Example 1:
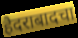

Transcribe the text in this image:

हैदराबादचा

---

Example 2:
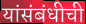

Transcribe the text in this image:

यांसंबंधीची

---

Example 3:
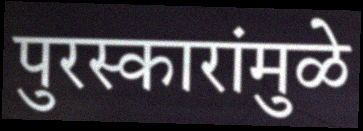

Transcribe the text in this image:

पुरस्कारांमुळे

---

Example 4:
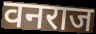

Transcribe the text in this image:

वनराज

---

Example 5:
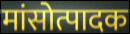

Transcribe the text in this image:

मांसोत्पादक